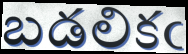
బడలికఁ